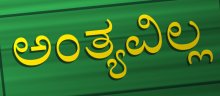
ಅಂತ್ಯವಿಲ್ಲ